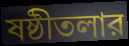
ষষ্ঠীতলার